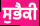
ਸੁਭੈਕੀ